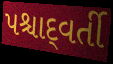
પશ્ચાદ્‌વર્તી